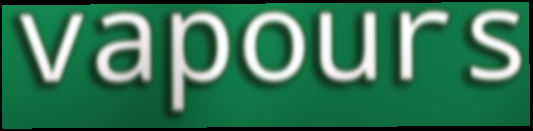
vapours